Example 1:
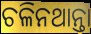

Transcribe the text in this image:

ଚଳିନଥାନ୍ତା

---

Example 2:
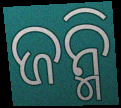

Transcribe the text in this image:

ଜନ୍ମି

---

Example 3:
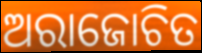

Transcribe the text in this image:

ଅରାଜୋଚିତ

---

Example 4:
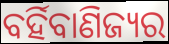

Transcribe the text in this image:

ବର୍ହିବାଣିଜ୍ୟର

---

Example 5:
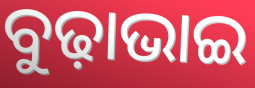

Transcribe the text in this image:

ବୁଢ଼ାଭାଇ